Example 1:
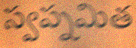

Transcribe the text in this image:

స్వప్నమిత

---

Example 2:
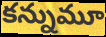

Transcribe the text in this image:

కన్నుమూ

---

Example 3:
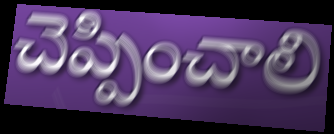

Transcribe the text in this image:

చెప్పించాలి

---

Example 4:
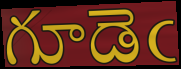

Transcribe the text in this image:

గూడెఁ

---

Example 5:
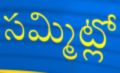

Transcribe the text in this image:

సమ్మిట్లో